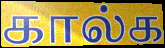
கால்க